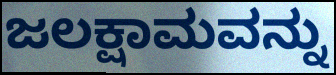
ಜಲಕ್ಷಾಮವನ್ನು